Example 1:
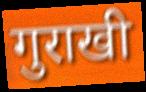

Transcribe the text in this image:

गुराखी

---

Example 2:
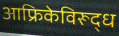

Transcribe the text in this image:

आफ्रिकेविरूद्ध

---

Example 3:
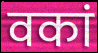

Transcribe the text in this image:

वकां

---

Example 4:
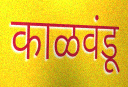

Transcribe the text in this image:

काळवंडू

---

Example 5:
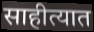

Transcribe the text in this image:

साहीत्यात